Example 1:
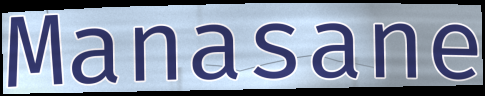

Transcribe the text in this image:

Manasane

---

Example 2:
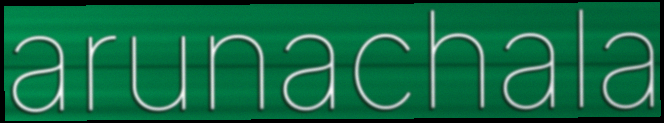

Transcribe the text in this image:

arunachala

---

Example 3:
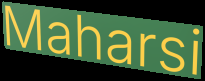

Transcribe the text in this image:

Maharsi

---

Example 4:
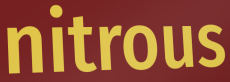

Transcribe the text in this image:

nitrous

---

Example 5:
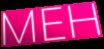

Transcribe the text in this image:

MEH